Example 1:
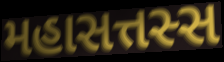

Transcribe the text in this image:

મહાસત્તસ્સ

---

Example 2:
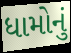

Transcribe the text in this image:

ધામોનું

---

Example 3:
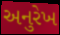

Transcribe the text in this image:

અનુરેખ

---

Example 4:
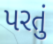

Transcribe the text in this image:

પરતું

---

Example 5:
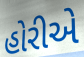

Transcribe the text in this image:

હોરીએ